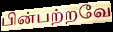
பின்பற்றவே